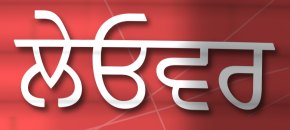
ਲੇਓਵਰ